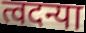
त्वदन्या